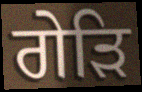
ਗੇੜਿ